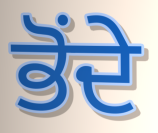
ਭੋਂਦੇ